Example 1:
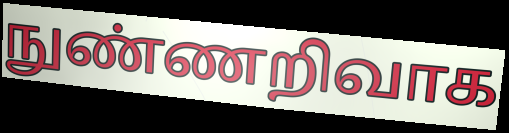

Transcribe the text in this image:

நுண்ணறிவாக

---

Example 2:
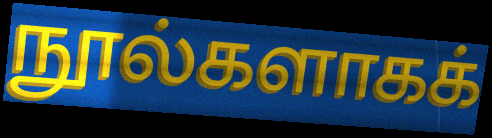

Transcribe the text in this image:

நூல்களாகக்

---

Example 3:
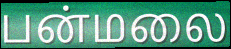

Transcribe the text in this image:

பன்மலை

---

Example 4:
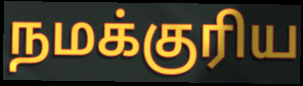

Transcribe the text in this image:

நமக்குரிய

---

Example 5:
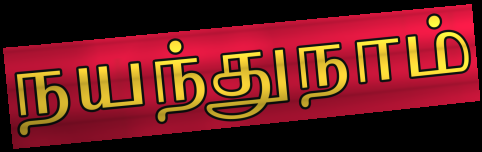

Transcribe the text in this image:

நயந்துநாம்